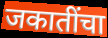
जकातींचा